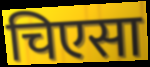
चिएसा